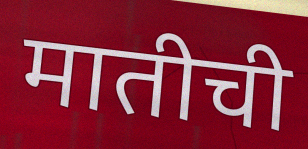
मातीची